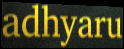
adhyaru